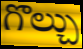
గొల్చు